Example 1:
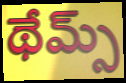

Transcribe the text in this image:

థేమ్స్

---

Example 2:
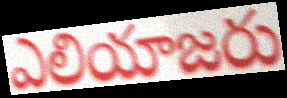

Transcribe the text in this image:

ఎలియాజరు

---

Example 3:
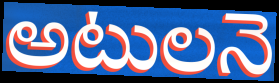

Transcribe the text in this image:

అటులనె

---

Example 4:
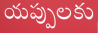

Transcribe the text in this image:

యప్పులకు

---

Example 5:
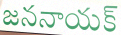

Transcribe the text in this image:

జననాయక్